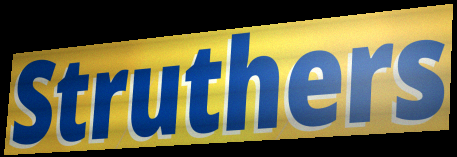
Struthers